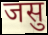
जसु